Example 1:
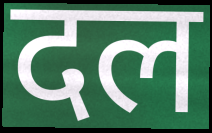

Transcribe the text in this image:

दल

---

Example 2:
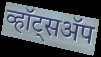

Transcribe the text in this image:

व्हॉट्सॲप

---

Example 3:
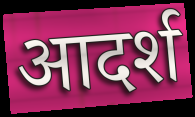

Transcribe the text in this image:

आदर्श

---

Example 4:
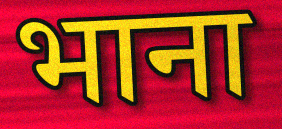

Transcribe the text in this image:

भाना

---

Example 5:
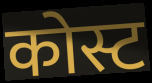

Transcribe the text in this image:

कोस्ट